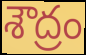
శౌద్రం